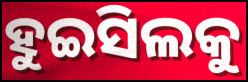
ହୁଇସିଲକୁ